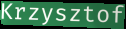
Krzysztof